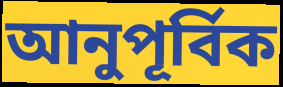
আনুপূর্বিক